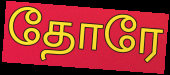
தோரே